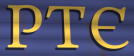
PTE